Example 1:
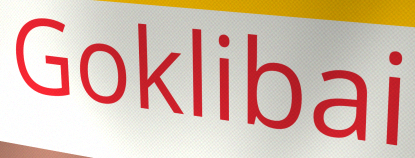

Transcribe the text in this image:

Goklibai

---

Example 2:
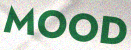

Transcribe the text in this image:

MOOD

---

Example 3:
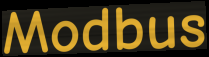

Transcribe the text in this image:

Modbus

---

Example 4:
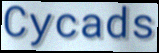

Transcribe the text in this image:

Cycads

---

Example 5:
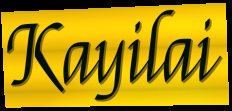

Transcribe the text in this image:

Kayilai